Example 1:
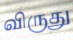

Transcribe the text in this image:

விருது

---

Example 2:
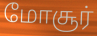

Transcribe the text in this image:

மோசூர்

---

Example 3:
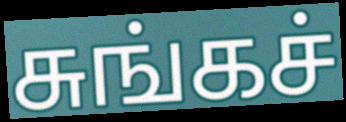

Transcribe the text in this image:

சுங்கச்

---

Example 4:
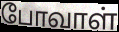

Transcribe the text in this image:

போவாள்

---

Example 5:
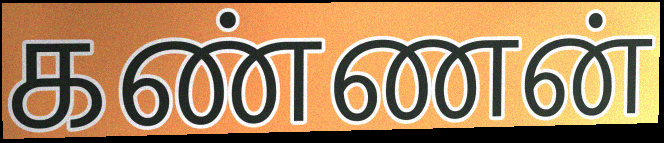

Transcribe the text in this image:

கண்ணன்